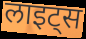
लाइट्स